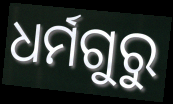
ଧର୍ମଗୁରୁ